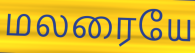
மலரையே